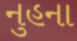
નુહના